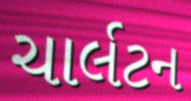
ચાર્લટન